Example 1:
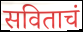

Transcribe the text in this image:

सविताचं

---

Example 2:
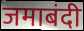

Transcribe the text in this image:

जमाबंदी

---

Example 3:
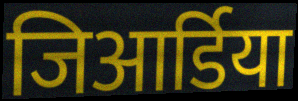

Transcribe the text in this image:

जिआर्डिया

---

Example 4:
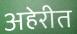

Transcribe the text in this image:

अहेरीत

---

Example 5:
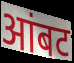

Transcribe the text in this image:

आंबट